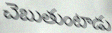
చెబుతుంటాడు